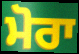
ਮੋਰਾ